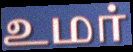
உமர்